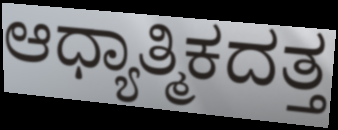
ಆಧ್ಯಾತ್ಮಿಕದತ್ತ